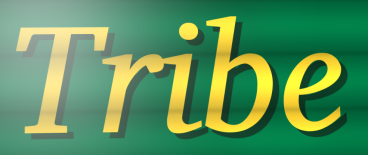
Tribe